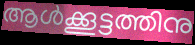
ആൾക്കൂട്ടത്തിനു